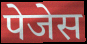
पेजेस